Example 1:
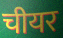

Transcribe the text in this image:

चीयर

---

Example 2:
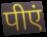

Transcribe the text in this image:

पीएं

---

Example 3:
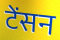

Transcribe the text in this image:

टेंसन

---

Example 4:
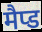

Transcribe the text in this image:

मैप्ड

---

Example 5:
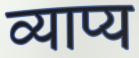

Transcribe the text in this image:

व्याप्य